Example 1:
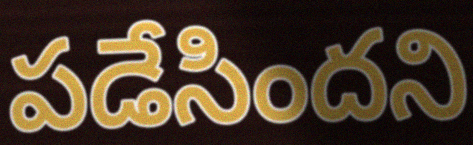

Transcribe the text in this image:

పడేసిందని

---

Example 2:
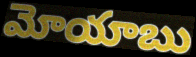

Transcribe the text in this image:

మోయాబు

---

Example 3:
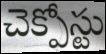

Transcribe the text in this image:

చెక్పోస్టు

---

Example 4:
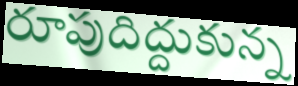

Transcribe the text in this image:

రూపుదిద్దుకున్న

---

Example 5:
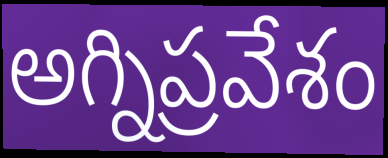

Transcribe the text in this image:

అగ్నిప్రవేశం